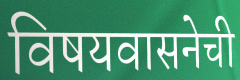
विषयवासनेची